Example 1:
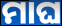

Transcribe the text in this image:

ମାଘ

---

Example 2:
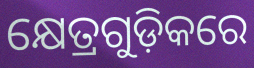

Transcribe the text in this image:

କ୍ଷେତ୍ରଗୁଡ଼ିକରେ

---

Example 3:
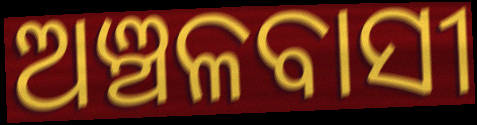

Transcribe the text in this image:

ଅଞ୍ଚଳବାସୀ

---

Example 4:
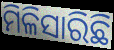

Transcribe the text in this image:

ମିଳିସାରିଛି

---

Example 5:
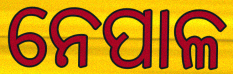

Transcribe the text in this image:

ନେପାଳ